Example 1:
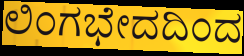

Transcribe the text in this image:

ಲಿಂಗಭೇದದಿಂದ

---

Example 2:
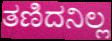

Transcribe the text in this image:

ತಣಿದನಿಲ್ಲ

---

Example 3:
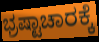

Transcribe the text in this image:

ಭ್ರಷ್ಟಾಚಾರಕ್ಕೆ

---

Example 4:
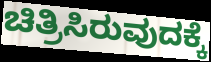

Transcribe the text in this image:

ಚಿತ್ರಿಸಿರುವುದಕ್ಕೆ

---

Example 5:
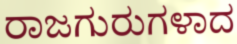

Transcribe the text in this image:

ರಾಜಗುರುಗಳಾದ